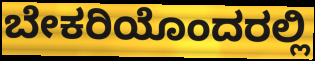
ಬೇಕರಿಯೊಂದರಲ್ಲಿ